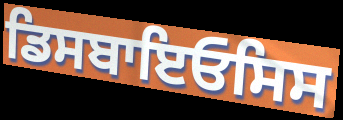
ਡਿਸਬਾਇਓਸਿਸ